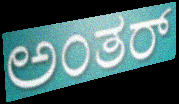
ಅಂತರ್